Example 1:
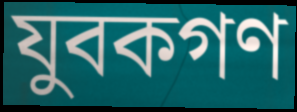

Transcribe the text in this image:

যুবকগণ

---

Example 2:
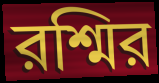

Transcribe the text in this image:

রশ্মির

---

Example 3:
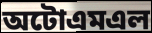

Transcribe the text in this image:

অটোএমএল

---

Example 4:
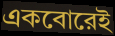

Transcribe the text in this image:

একবোরেই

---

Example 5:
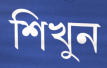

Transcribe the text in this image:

শিখুন